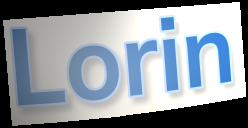
Lorin